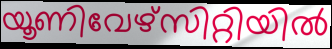
യൂണിവേഴ്സിറ്റിയിൽ